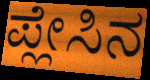
ಪ್ಲೇಸಿನ